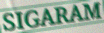
SIGARAM